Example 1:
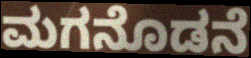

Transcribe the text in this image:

ಮಗನೊಡನೆ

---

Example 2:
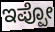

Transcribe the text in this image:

ಇಪ್ಪೋ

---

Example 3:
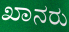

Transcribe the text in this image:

ಖಾನರು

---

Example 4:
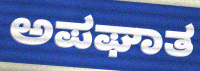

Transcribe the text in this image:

ಅಪಘಾತ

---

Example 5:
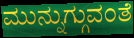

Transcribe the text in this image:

ಮುನ್ನುಗ್ಗುವಂತೆ